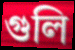
গুলি